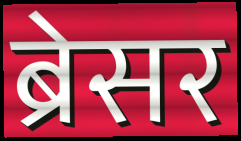
ब्रेसर